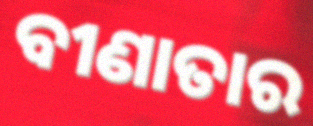
ବୀଣାତାର